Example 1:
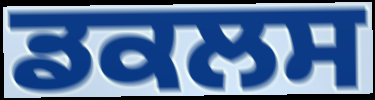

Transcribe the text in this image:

ਡਕਲਸ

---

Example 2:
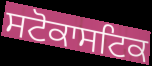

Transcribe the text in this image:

ਸਟੋਕਾਸਟਿਕ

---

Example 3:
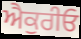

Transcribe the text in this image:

ਐਕੁਰੀਓ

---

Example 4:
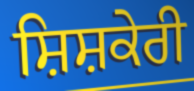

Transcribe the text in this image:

ਸ਼ਿਸ਼ਕੇਰੀ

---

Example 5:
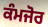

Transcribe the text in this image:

ਕੰਮਜੋਰ